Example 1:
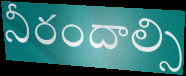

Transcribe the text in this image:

నీరందాల్సి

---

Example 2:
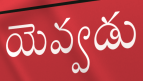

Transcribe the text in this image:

యెవ్వడు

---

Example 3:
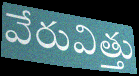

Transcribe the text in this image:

వేరువిత్తు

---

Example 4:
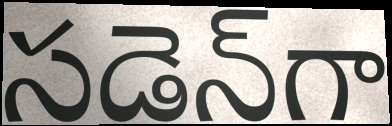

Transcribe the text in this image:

సడెన్‌గా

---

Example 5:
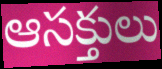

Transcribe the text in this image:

ఆసక్తులు